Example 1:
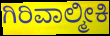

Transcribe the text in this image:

ಗಿರಿವಾಲ್ಮೀಕಿ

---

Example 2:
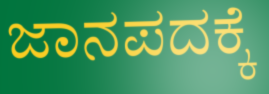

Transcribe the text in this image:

ಜಾನಪದಕ್ಕೆ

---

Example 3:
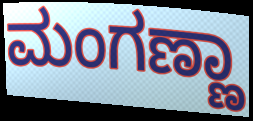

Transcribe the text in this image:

ಮಂಗಣ್ಣಾ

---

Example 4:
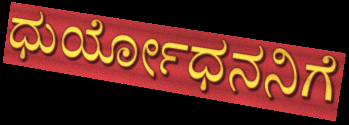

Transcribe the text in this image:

ಧುರ್ಯೋಧನನಿಗೆ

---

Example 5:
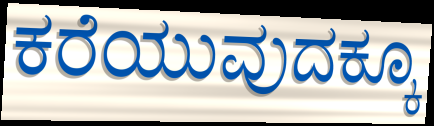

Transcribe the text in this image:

ಕರೆಯುವುದಕ್ಕೂ